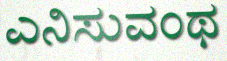
ಎನಿಸುವಂಥ